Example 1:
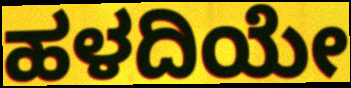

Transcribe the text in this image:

ಹಳದಿಯೇ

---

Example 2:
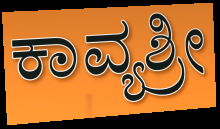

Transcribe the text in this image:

ಕಾವ್ಯಶ್ರೀ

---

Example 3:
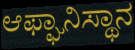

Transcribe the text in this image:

ಆಫ್ಘಾನಿಸ್ಥಾನ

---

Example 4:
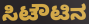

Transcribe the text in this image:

ಸಿಟೌಟಿನ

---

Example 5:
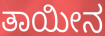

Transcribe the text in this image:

ತಾಯೀನ